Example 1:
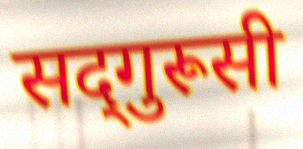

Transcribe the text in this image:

सद्‍गुरूसी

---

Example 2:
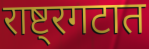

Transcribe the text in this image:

राष्ट्रगटात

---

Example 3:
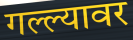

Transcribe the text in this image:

गल्ल्यावर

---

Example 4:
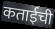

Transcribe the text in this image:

कताईची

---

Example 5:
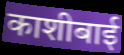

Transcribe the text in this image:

काशीबाई